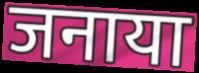
जनाया